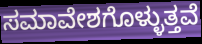
ಸಮಾವೇಶಗೊಳ್ಳುತ್ತವೆ